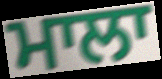
ਮਾਲਾ